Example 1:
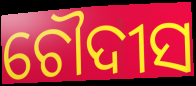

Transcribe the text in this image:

ଚୌଦୀସ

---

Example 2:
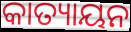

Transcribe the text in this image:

କାତ୍ୟାୟନ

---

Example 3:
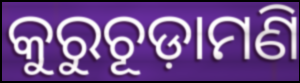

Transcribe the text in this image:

କୁରୁଚୂଡ଼ାମଣି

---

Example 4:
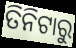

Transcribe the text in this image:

ତିନିଟାରୁ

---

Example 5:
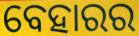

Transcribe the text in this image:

ବେହାରର